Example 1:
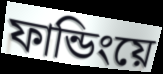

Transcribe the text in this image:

ফান্ডিংয়ে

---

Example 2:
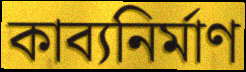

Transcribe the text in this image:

কাব্যনির্মাণ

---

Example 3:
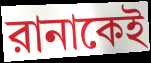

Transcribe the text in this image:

রানাকেই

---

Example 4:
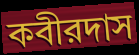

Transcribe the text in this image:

কবীরদাস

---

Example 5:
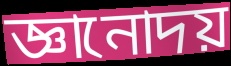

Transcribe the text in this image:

জ্ঞানোদয়